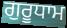
ਗੁਰੂਧਾਮ